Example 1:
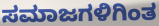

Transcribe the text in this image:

ಸಮಾಜಗಳಿಗಿಂತ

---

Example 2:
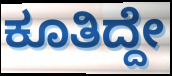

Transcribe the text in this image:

ಕೂತಿದ್ದೇ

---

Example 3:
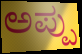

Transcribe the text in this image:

ಅಪ್ಪು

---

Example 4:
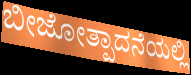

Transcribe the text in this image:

ಬೀಜೋತ್ಪಾದನೆಯಲ್ಲಿ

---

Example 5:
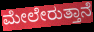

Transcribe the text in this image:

ಮೇಲೇರುತ್ತಾನೆ